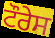
ਟੌਰੇਸ